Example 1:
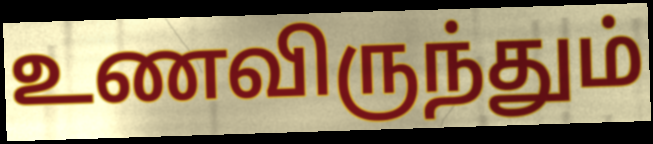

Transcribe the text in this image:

உணவிருந்தும்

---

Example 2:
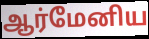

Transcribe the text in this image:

ஆர்மேனிய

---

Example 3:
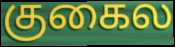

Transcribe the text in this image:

குகைல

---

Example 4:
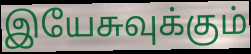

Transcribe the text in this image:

இயேசுவுக்கும்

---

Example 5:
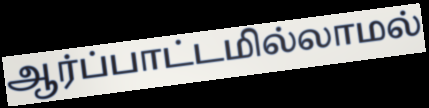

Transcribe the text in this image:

ஆர்ப்பாட்டமில்லாமல்